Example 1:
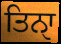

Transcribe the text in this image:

ਤਿਨੑਾ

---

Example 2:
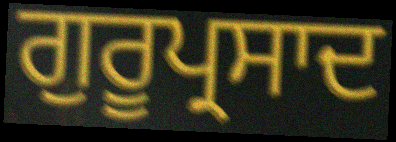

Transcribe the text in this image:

ਗੁਰੂਪ੍ਰਸਾਦ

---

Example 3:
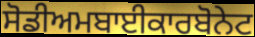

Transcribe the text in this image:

ਸੋਡੀਅਮਬਾਈਕਾਰਬੋਨੇਟ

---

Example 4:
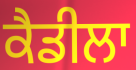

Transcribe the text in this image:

ਕੈਡੀਲਾ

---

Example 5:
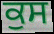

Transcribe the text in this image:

ਕੁਸ